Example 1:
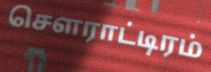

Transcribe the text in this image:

சௌராட்டிரம்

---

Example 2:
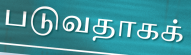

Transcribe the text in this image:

படுவதாகக்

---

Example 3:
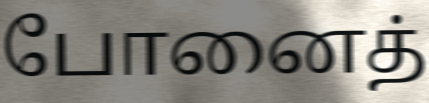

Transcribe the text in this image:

போனைத்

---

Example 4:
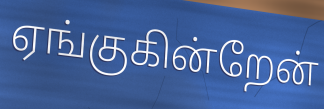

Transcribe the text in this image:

ஏங்குகின்றேன்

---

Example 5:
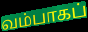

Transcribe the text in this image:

வம்பாகப்